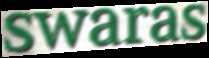
swaras